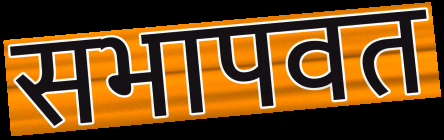
सभापवत